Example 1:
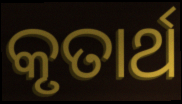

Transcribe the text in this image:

କୃତାର୍ଥ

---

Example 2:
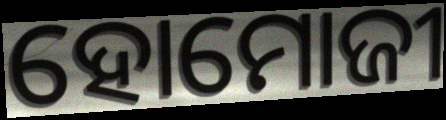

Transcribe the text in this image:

ହୋମୋଜୀ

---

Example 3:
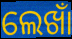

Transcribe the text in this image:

ଲେଖାଁ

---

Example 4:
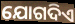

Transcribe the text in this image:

ଯୋଗଦିଏ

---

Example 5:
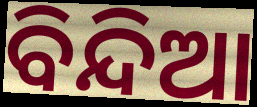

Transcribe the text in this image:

ବିନ୍ଦିଆ